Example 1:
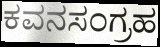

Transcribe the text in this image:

ಕವನಸಂಗ್ರಹ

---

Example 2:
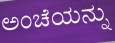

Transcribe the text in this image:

ಅಂಚೆಯನ್ನು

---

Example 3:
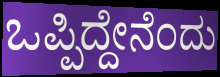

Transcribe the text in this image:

ಒಪ್ಪಿದ್ದೇನೆಂದು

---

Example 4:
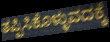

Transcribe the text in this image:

ತಪ್ಪಿಸಿಕೊಳ್ಳುವದಕ್ಕೆ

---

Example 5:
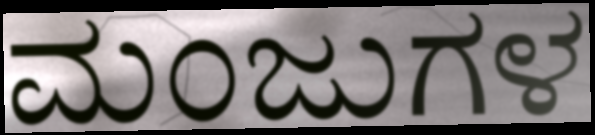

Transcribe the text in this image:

ಮಂಜುಗಳ